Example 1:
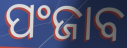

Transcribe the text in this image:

ପଂଜାବ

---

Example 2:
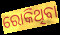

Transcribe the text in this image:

ରୋକିଥିବା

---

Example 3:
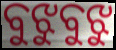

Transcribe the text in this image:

ବୁଝୁବୁଝୁ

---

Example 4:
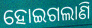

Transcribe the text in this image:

ହୋଇଗଲାଣି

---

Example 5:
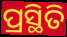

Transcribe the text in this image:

ପ୍ରସ୍ଥିତି